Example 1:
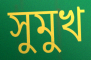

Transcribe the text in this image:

সুমুখ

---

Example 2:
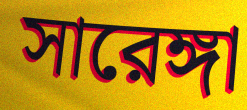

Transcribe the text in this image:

সারেঙ্গা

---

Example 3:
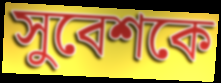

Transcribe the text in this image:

সুবেশকে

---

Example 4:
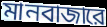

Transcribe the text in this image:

মানবাজারে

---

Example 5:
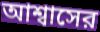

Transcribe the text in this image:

আশ্বাসের